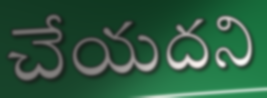
చేయదని